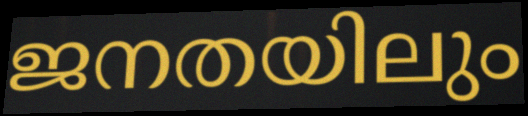
ജനതയിലും